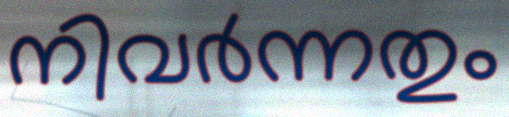
നിവർന്നതും